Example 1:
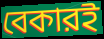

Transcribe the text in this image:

বেকারই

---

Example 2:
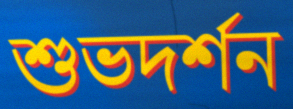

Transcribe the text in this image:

শুভদর্শন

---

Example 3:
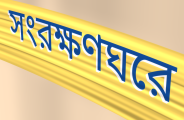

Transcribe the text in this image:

সংরক্ষণঘরে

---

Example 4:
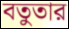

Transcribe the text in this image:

বতুতার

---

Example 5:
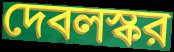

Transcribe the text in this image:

দেবলস্কর